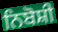
ਨਿਬੋਸ਼ੀ